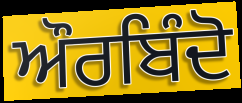
ਔਰਬਿੰਦੋ